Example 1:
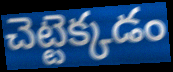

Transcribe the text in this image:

చెట్టెక్కడం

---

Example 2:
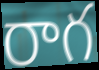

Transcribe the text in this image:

రాగ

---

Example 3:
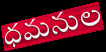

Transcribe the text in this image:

ధమనుల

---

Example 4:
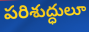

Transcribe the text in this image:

పరిశుద్ధులూ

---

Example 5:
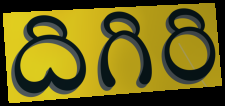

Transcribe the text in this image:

దిగిరి